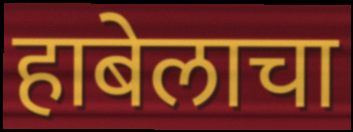
हाबेलाचा